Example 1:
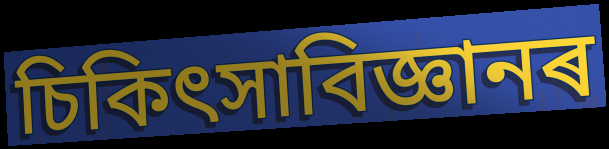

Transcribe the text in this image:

চিকিৎসাবিজ্ঞানৰ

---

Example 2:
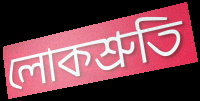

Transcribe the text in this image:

লোকশ্ৰুতি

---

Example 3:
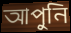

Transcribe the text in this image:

আপুনি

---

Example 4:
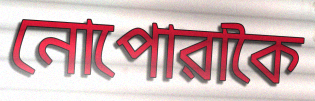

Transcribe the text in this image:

নোপোৱাকৈ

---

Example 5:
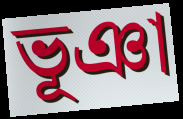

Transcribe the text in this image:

ভূঞা